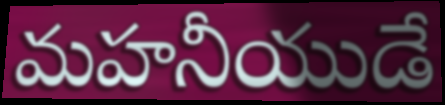
మహనీయుడే